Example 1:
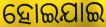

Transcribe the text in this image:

ହୋଇଯାଇ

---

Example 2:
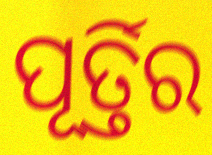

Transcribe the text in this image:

ପୂର୍ତ୍ତିର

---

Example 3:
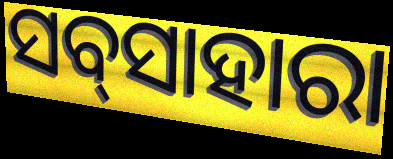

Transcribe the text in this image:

ସବ୍‌ସାହାରା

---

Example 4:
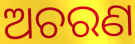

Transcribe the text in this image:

ଅଚରଣ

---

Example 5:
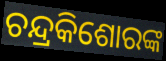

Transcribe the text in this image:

ଚନ୍ଦ୍ରକିଶୋରଙ୍କ